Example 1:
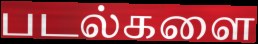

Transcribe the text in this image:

படல்களை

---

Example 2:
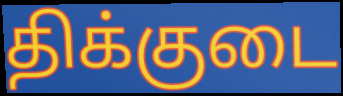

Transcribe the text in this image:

திக்குடை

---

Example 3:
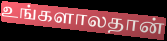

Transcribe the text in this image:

உங்களாலதான்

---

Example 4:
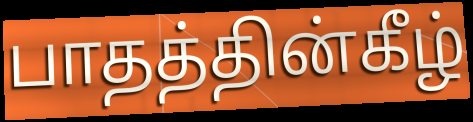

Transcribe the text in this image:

பாதத்தின்கீழ்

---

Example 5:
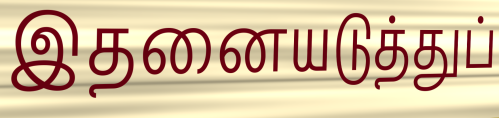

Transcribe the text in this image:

இதனையடுத்துப்